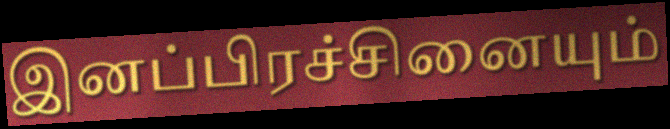
இனப்பிரச்சினையும்